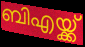
ബിഎയ്ക്ക്